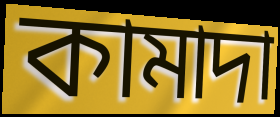
কামাদা